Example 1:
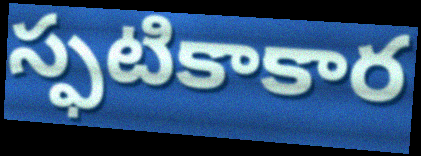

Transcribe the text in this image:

స్ఫటికాకార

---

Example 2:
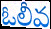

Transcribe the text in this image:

ఓలీవ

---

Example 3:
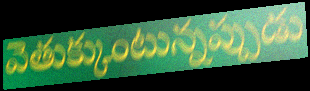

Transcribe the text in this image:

వెతుక్కుంటున్నప్పుడు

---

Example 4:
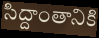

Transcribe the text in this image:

సిద్దాంతానికి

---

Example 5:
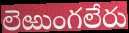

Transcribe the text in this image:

లెఱుంగలేరు